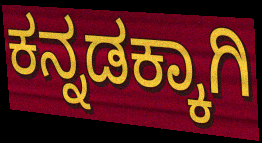
ಕನ್ನಡಕ್ಕಾಗಿ